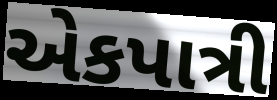
એકપાત્રી